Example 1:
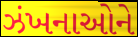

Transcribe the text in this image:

ઝંખનાઓને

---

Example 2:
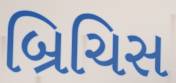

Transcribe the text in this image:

બ્રિચિસ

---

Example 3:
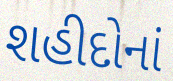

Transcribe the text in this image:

શહીદોનાં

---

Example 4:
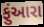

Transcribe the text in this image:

ફુંઆરા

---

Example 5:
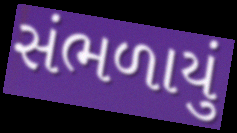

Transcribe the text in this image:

સંભળાયું